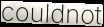
couldnot